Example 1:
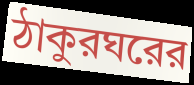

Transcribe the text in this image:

ঠাকুরঘরের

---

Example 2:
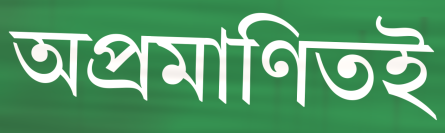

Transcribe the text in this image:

অপ্রমাণিতই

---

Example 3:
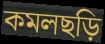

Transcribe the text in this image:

কমলছড়ি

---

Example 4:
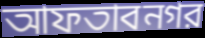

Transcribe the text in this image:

আফতাবনগর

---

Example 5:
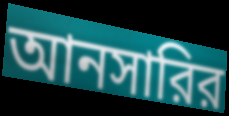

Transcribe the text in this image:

আনসারির